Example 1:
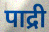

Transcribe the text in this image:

पाद्री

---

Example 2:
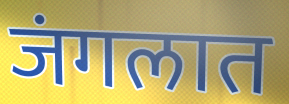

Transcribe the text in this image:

जंगलात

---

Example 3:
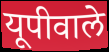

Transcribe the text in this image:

यूपीवाले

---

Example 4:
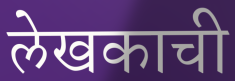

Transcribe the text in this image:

लेखकाची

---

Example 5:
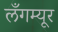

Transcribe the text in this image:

लँगम्यूर